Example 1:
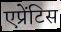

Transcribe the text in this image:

एप्रेंटिस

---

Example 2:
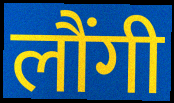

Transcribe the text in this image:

लौंगी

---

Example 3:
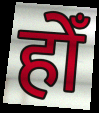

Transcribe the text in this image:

होँ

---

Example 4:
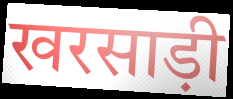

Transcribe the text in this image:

खरसाड़ी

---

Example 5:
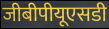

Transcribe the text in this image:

जीबीपीयूएसडी